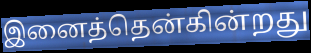
இனைத்தென்கின்றது